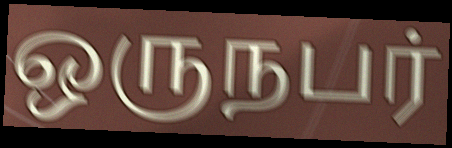
ஒருநபர்